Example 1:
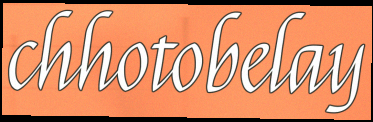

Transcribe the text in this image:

chhotobelay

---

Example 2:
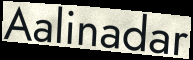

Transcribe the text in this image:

Aalinadar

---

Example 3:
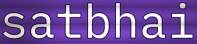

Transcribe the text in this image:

satbhai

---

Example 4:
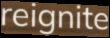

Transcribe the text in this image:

reignite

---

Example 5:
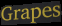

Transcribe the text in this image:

Grapes